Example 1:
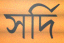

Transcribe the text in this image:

সর্দি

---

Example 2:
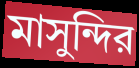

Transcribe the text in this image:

মাসুন্দির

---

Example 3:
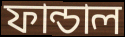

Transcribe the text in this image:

ফান্ডাল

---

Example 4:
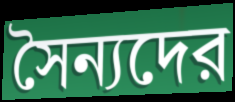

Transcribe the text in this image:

সৈন্যদের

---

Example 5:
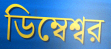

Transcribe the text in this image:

ডিম্বেশ্বর